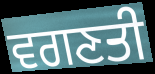
ਵਗਣਤੀ